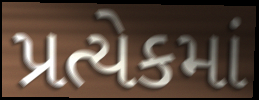
પ્રત્યેકમાં